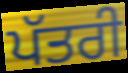
ਪੱਤਰੀ